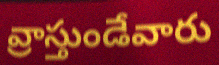
వ్రాస్తుండేవారు